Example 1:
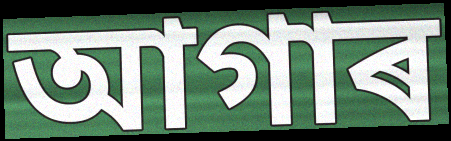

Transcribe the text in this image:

আগাৰ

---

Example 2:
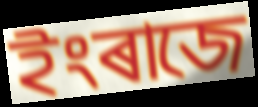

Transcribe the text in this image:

ইংৰাজে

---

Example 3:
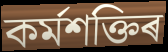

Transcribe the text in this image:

কৰ্মশক্তিৰ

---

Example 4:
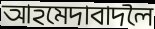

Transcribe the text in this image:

আহমেদাবাদলৈ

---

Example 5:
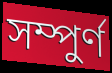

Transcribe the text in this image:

সম্পুৰ্ণ